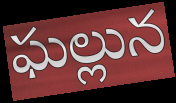
ఘల్లున